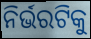
ନିର୍ଭରଟିକୁ